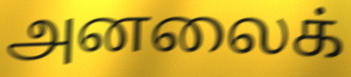
அனலைக்